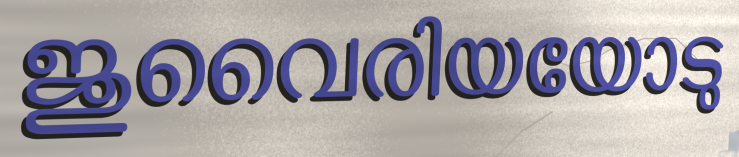
ജുവൈരിയയോടു